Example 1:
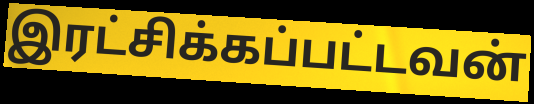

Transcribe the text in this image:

இரட்சிக்கப்பட்டவன்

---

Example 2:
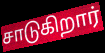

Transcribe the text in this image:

சாடுகிறார்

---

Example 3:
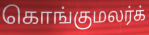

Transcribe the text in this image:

கொங்குமலர்க்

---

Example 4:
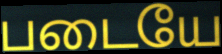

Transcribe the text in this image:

படையே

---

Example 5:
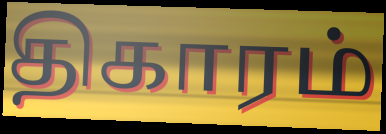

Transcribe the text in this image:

திகாரம்